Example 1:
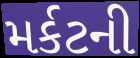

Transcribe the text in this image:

મર્કટની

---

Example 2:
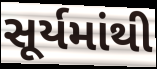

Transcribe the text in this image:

સૂર્યમાંથી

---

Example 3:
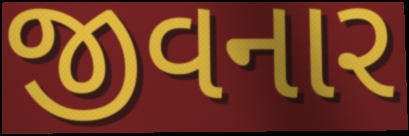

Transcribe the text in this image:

જીવનાર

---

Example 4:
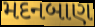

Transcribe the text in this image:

મદનબાણ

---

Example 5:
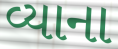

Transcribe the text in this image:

વ્યાના